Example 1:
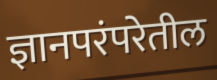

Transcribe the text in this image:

ज्ञानपरंपरेतील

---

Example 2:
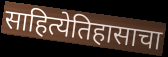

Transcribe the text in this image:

साहित्येतिहासाचा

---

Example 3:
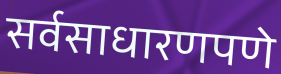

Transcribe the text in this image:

सर्वसाधारणपणे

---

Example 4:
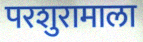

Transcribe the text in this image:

परशुरामाला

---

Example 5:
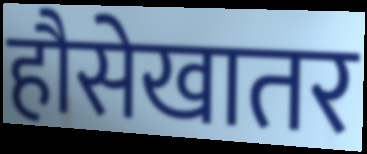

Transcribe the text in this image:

हौसेखातर